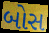
બોસ